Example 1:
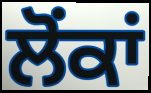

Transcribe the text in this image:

ਲੋਂਕਾਂ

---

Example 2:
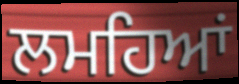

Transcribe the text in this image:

ਲਮਹਿਆਂ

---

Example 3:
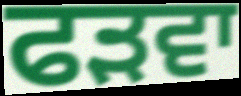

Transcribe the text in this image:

ਫੜਵਾ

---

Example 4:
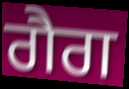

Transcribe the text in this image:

ਗੈਗ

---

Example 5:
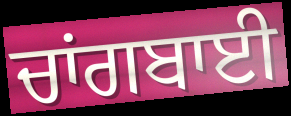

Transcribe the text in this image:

ਚਾਂਗਬਾਈ